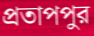
প্রতাপপুর